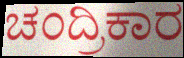
ಚಂದ್ರಿಕಾರ